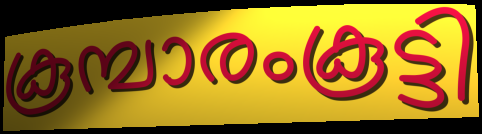
കൂമ്പാരംകൂട്ടി